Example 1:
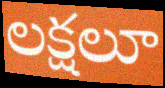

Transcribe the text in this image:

లక్షలూ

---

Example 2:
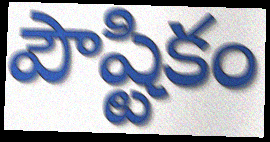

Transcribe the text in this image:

పౌష్టికం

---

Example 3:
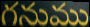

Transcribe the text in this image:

గనుము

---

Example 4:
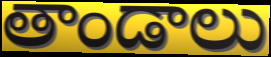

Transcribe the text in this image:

తాండాలు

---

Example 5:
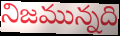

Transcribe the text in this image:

నిజమున్నది